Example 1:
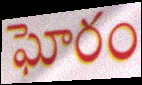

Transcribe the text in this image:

ఘోరం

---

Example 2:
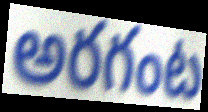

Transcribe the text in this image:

అరగంట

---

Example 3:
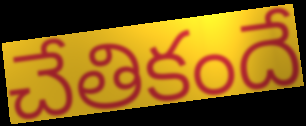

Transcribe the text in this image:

చేతికందే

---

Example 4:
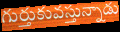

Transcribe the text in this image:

గుర్తుకువస్తున్నాడు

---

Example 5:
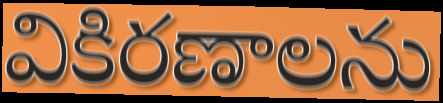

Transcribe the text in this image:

వికిరణాలను